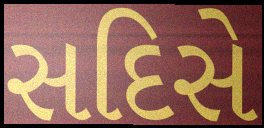
સદિસે